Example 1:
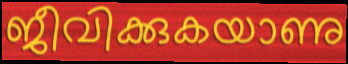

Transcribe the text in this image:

ജീവിക്കുകയാണു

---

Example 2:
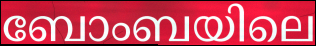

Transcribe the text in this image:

ബോംബയിലെ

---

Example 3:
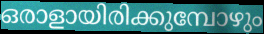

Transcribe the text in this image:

ഒരാളായിരിക്കുമ്പോഴും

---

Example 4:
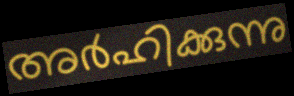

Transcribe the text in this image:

അർഹിക്കുന്നു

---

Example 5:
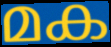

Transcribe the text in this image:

മക